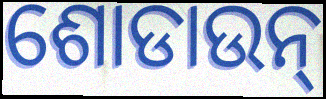
ଶୋଡାଉନ୍